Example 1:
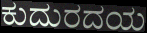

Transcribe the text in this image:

ಕುದುರದಯ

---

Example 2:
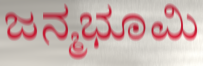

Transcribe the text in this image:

ಜನ್ಮಭೂಮಿ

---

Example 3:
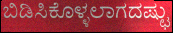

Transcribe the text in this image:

ಬಿಡಿಸಿಕೊಳ್ಳಲಾಗದಷ್ಟು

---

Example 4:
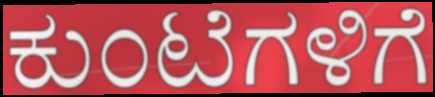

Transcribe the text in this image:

ಕುಂಟೆಗಳಿಗೆ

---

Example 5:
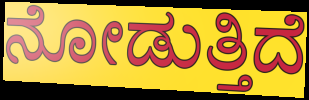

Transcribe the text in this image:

ನೋಡುತ್ತಿದೆ